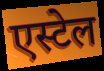
एस्टेल